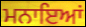
ਮਨਾਇਆਂ